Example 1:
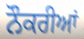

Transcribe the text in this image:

ਨੌਕਰੀਆਂ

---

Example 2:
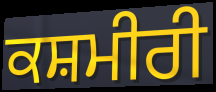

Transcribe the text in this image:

ਕਸ਼ਮੀਰੀ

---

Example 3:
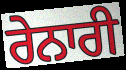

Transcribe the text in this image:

ਰੇਨਾਰੀ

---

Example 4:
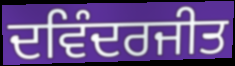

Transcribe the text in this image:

ਦਵਿੰਦਰਜੀਤ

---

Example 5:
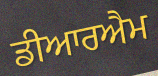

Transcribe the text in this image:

ਡੀਆਰਐਮ